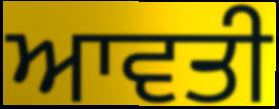
ਆਵਤੀ